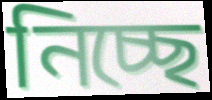
নিচ্ছে